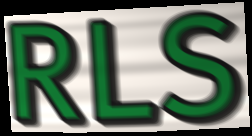
RLS